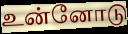
உன்னோடு